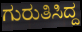
ಗುರುತಿಸಿದ್ದ